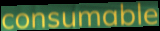
consumable